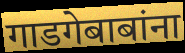
गाडगेबाबांना